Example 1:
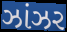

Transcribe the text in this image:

ઝાંઝર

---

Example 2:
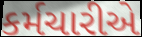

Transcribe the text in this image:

કર્મચારીએ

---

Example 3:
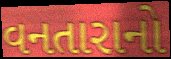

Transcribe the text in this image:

વનતારાનો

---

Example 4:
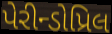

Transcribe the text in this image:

પેરીન્ડોપ્રિલ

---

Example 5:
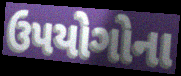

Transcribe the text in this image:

ઉપયોગોના